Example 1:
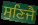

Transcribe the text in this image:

ਸੁਣਿਜੈ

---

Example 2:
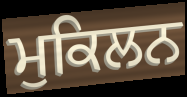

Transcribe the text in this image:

ਮੁਕਿਲਨ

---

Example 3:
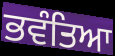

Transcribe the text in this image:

ਭਵੰਤਿਆ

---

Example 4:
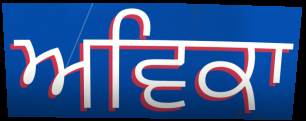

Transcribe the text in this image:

ਅਵਿਕਾ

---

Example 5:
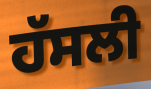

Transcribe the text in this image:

ਹੱਸਲੀ